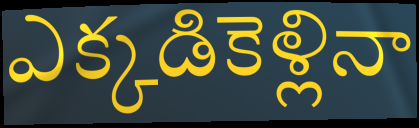
ఎక్కడికెళ్లినా